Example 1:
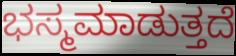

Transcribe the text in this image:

ಭಸ್ಮಮಾಡುತ್ತದೆ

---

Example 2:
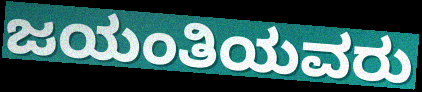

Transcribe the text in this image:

ಜಯಂತಿಯವರು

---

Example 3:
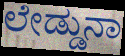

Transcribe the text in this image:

ಲೇಡ್ಡುನಾ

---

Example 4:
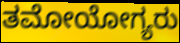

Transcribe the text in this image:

ತಮೋಯೋಗ್ಯರು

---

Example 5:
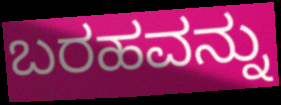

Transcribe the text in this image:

ಬರಹವನ್ನು